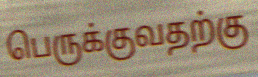
பெருக்குவதற்கு